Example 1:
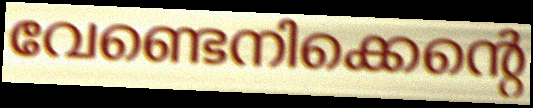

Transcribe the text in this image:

വേണ്ടെനിക്കെന്റെ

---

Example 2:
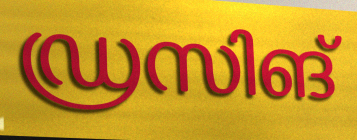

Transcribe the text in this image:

ഡ്രസിങ്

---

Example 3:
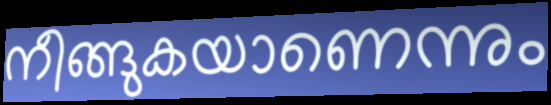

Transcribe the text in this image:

നീങ്ങുകയാണെന്നും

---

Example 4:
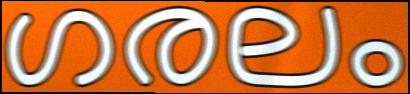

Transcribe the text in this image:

ഗരലം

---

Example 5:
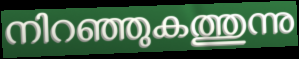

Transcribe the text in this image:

നിറഞ്ഞുകത്തുന്നു